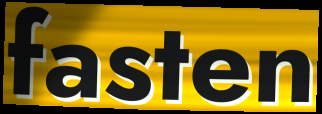
fasten